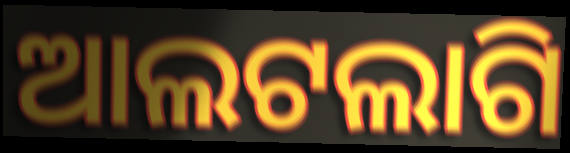
ଆଲଟଲାଗି